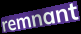
remnant